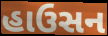
હાઉસન